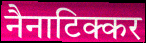
नैनाटिक्कर